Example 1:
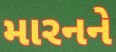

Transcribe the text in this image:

મારનને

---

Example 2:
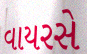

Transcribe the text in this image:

વાયરસે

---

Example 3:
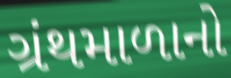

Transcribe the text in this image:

ગ્રંથમાળાનો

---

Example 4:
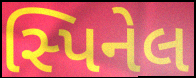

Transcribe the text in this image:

સ્પિનેલ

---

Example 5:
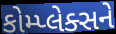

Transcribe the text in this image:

કોમ્પ્લેક્સને